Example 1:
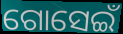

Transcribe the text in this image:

ଗୋସେଇଁ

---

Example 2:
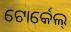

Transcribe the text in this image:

ଟୋର୍କେଲ୍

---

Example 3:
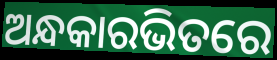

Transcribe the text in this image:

ଅନ୍ଧକାରଭିତରେ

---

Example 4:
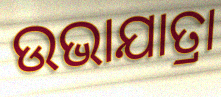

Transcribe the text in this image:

ଉଭାଯାତ୍ରା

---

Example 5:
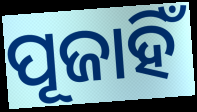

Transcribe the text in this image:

ପୂଜାହିଁ